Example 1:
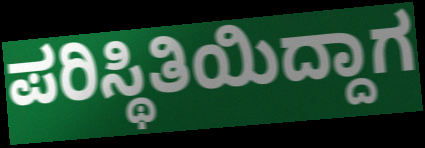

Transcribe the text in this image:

ಪರಿಸ್ಥಿತಿಯಿದ್ದಾಗ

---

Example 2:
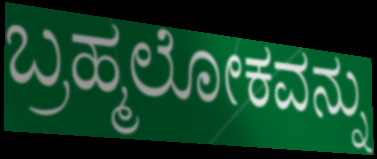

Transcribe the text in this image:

ಬ್ರಹ್ಮಲೋಕವನ್ನು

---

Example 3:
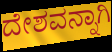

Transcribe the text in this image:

ದೇಶವನ್ನಾಗಿ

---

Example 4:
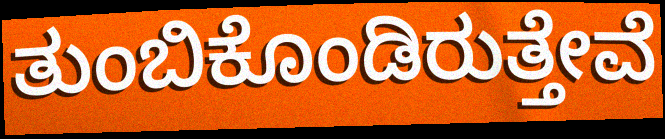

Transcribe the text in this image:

ತುಂಬಿಕೊಂಡಿರುತ್ತೇವೆ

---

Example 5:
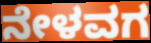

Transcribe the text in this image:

ನೇಳವಗ